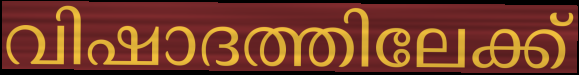
വിഷാദത്തിലേക്ക്